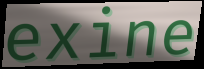
exine